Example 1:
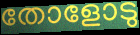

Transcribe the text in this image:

തോളോടു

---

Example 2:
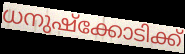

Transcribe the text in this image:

ധനുഷ്ക്കോടിക്ക്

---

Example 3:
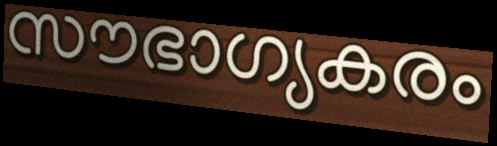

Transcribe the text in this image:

സൗഭാഗ്യകരം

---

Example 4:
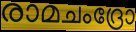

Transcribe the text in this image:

രാമചംദ്രോ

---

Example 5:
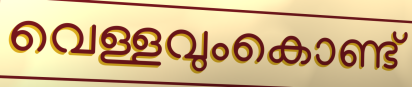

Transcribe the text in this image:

വെള്ളവുംകൊണ്ട്